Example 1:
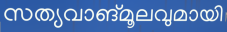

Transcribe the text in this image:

സത്യവാങ്മൂലവുമായി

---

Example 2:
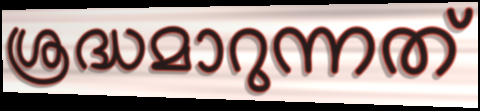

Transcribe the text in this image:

ശ്രദ്ധമാറുന്നത്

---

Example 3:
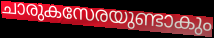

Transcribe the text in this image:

ചാരുകസേരയുണ്ടാകും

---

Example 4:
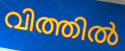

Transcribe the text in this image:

വിത്തിൽ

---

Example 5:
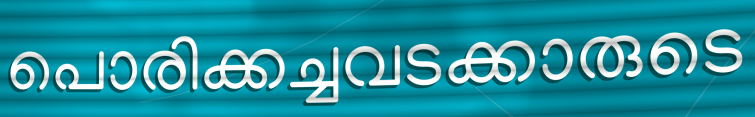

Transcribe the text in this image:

പൊരിക്കച്ചവടക്കാരുടെ